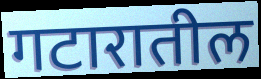
गटारातील